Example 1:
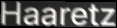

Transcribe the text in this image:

Haaretz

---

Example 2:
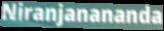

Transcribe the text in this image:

Niranjanananda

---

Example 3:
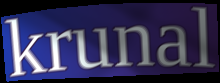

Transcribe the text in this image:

krunal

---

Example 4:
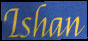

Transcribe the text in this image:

Ishan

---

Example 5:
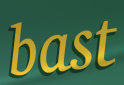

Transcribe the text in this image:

bast